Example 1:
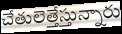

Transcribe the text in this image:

చేతులెత్తేస్తున్నారు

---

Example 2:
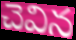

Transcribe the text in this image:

చెవిన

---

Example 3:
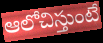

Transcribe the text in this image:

ఆలోచిస్తుంటే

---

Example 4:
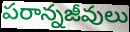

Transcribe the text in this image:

పరాన్నజీవులు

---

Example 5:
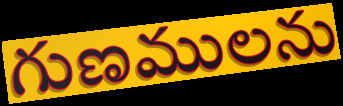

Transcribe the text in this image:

గుణములను